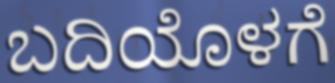
ಬದಿಯೊಳಗೆ